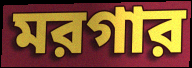
মরগার